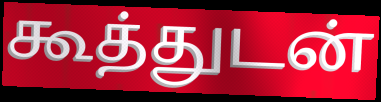
கூத்துடன்